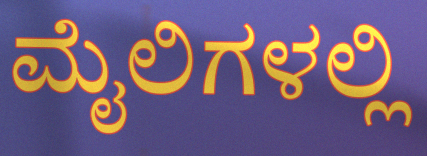
ಮೈಲಿಗಳಲ್ಲಿ